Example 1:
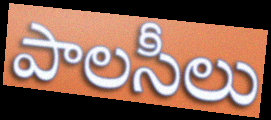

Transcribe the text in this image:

పాలసీలు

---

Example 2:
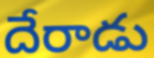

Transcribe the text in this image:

దేరాడు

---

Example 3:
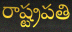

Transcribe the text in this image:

రాష్ట్రపతి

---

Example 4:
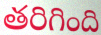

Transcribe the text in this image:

తరిగింది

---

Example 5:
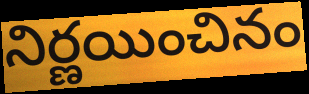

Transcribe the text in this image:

నిర్ణయించినం